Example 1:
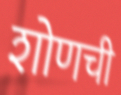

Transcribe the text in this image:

शोणची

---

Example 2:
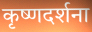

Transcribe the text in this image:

कृष्णदर्शना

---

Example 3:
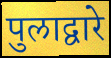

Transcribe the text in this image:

पुलाद्वारे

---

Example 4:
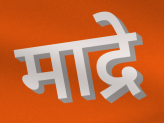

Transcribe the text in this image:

माद्रे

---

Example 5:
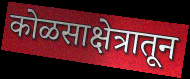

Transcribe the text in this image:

कोळसाक्षेत्रातून